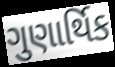
ગુણાર્થિક